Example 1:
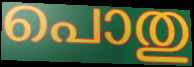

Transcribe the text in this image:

പൊതു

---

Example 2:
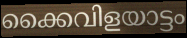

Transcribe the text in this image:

ക്കൈവിളയാട്ടം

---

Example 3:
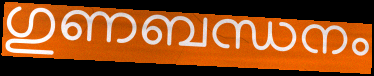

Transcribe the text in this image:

ഗുണബന്ധനം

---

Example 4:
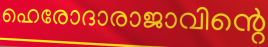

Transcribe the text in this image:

ഹെരോദാരാജാവിന്റെ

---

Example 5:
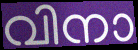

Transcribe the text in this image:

വിനാ